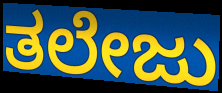
ತಲೇಜು